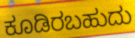
ಕೂಡಿರಬಹುದು